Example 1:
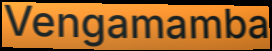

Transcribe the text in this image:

Vengamamba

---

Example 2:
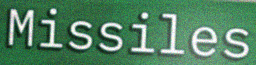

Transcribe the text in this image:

Missiles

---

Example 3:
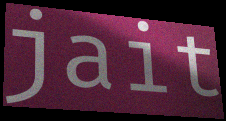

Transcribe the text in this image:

jait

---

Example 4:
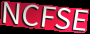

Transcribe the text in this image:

NCFSE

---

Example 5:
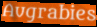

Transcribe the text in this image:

Augrabies